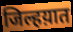
जिल्हय़ात